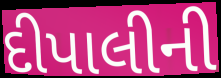
દીપાલીની